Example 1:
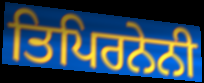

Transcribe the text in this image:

ਤਿਪਿਰਨੇਨੀ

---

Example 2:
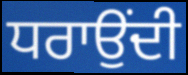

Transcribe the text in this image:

ਧਰਾਉਂਦੀ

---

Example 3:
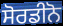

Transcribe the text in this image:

ਸੋਰਡੀਨੋ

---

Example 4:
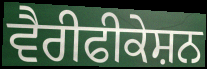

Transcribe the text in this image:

ਵੈਰੀਫੀਕੇਸ਼ਨ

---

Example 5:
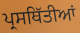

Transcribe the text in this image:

ਪ੍ਰਸਥਿੱਤੀਆਂ